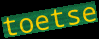
toetse